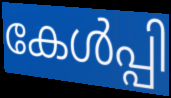
കേൾപ്പി